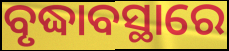
ବୃଦ୍ଧାବସ୍ଥାରେ